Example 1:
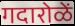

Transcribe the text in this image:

गदारोळें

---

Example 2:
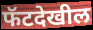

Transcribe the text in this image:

फॅटदेखील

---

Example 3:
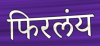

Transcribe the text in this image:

फिरलंय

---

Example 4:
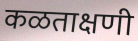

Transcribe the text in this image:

कळताक्षणी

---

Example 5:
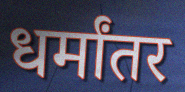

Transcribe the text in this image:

धर्मांतर